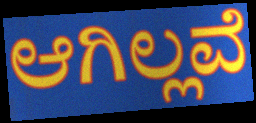
ಆಗಿಲ್ಲವೆ